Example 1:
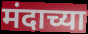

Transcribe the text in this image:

मंदाच्या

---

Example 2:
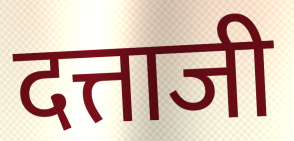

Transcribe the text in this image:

दत्ताजी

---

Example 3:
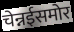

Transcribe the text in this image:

चेन्नईसमोर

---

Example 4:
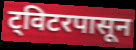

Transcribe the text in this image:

ट्विटरपासून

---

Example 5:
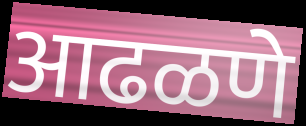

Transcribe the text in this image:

आढळणे